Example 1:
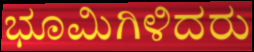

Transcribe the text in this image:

ಭೂಮಿಗಿಳಿದರು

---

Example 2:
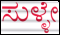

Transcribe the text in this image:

ಸುಳ್ಳೇ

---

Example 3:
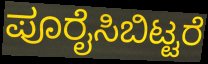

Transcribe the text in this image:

ಪೂರೈಸಿಬಿಟ್ಟರೆ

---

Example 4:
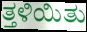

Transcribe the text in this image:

ತ್ತಳಿಯಿತು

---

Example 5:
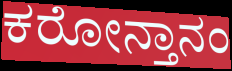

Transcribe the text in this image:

ಕರೋನ್ತಾನಂ